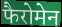
फैरोमेन